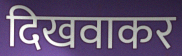
दिखवाकर